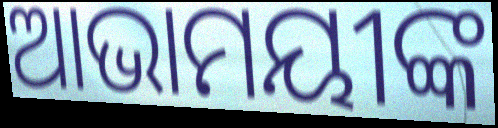
ଆଭାମୟୀଙ୍କ